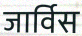
जार्विस